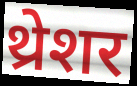
थ्रेशर